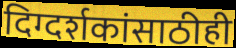
दिग्दर्शकांसाठीही